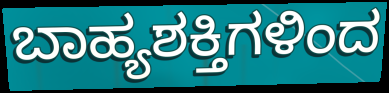
ಬಾಹ್ಯಶಕ್ತಿಗಳಿಂದ